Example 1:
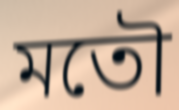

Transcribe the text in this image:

মতৌ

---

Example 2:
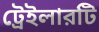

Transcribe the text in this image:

ট্রেইলারটি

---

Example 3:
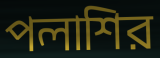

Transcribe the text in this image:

পলাশির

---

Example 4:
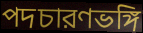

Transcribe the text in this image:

পদচারণভঙ্গি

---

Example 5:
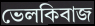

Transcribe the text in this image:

ভেলকিবাজ